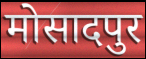
मोसादपुर